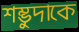
শম্ভুদাকে